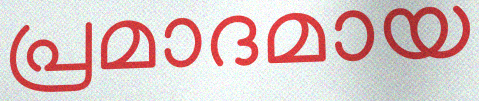
പ്രമാദമായ